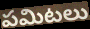
పమిటలు